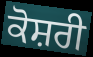
ਕੋਸ਼ਰੀ